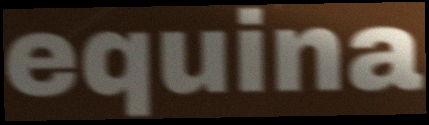
equina